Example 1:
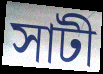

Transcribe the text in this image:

সাটী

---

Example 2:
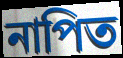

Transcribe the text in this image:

নাপিত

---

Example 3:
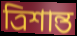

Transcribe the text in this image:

ত্রিশান্ত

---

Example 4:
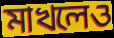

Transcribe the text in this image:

মাখলেও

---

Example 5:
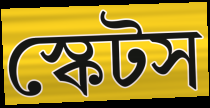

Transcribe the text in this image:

স্কেটস